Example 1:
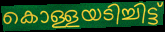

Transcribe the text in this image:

കൊള്ളയടിച്ചിട്ട്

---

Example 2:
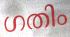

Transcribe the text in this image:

ഗതിം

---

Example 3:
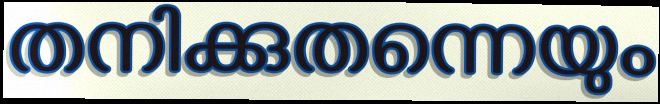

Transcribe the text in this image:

തനിക്കുതന്നെയും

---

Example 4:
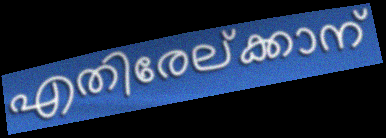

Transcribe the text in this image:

എതിരേല്ക്കാന്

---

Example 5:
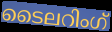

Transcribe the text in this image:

ടൈലറിംഗ്